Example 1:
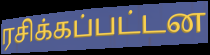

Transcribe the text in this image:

ரசிக்கப்பட்டன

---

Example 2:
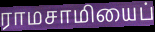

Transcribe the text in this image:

ராமசாமியைப்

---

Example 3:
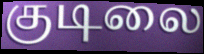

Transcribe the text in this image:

குடிலை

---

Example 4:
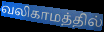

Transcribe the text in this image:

வலிகாமத்தில்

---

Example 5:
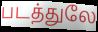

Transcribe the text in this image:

படத்துலே